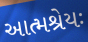
આત્મશ્રેયઃ